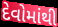
દેવોમાંથી